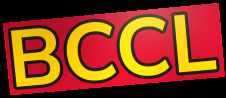
BCCL